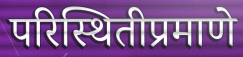
परिस्थितीप्रमाणे